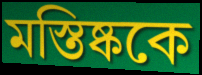
মস্তিষ্ককে